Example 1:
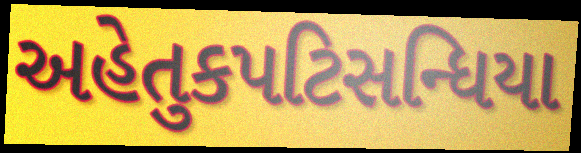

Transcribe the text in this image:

અહેતુકપટિસન્ધિયા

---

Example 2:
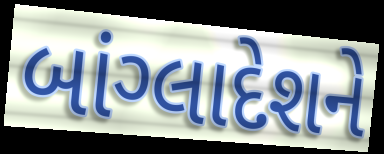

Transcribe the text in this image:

બાંગ્લાદેશને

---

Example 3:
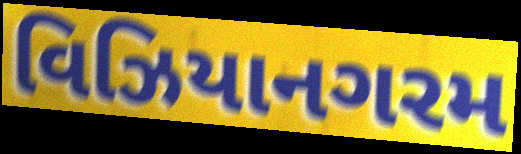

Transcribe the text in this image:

વિઝિયાનગરમ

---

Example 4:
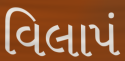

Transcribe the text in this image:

વિલાપં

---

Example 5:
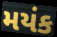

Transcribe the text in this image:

મયંક